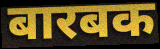
बारबक